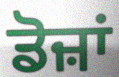
ਡੋਜ਼ਾਂ